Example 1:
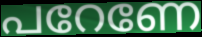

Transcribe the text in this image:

പറേണേ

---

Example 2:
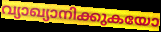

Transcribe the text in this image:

വ്യാഖ്യാനിക്കുകയോ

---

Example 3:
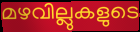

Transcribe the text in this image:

മഴവില്ലുകളുടെ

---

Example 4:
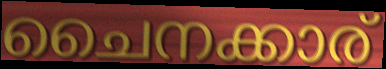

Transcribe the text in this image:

ചൈനക്കാര്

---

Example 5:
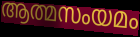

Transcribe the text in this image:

ആത്മസംയമം